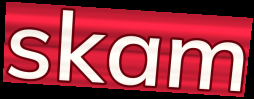
skam